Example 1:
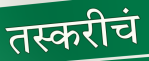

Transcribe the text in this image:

तस्करीचं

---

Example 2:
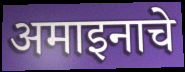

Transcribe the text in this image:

अमाइनाचे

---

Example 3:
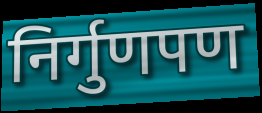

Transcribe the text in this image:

निर्गुणपण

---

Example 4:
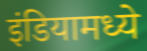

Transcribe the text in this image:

इंडियामध्ये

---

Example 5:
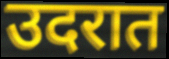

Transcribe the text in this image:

उदरात